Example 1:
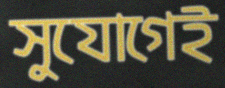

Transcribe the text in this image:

সুযোগেই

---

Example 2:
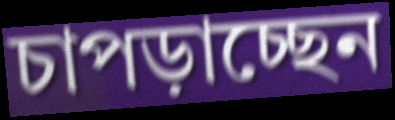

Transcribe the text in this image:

চাপড়াচ্ছেন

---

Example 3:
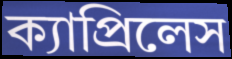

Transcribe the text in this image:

ক্যাপ্রিলেস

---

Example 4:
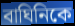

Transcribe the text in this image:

বাঘিনিকে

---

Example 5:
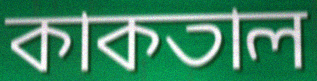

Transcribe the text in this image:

কাকতাল